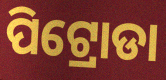
ପିଟ୍ରୋଡା